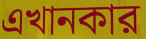
এখানকার